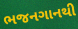
ભજનગાનથી